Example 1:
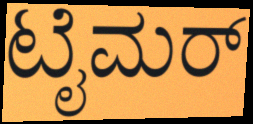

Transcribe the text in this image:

ಟೈಮರ್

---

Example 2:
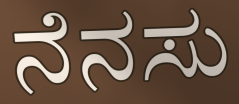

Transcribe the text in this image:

ನೆನಸು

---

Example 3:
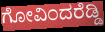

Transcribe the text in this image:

ಗೋವಿಂದರೆಡ್ಡಿ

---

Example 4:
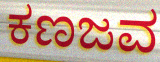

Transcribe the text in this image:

ಕಣಜವ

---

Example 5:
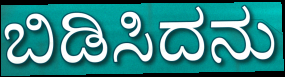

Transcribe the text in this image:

ಬಿಡಿಸಿದನು